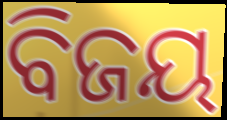
ବିଜୟ